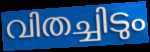
വിതച്ചിടും